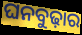
ଘନବୁଢ଼ାର